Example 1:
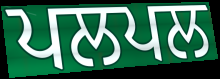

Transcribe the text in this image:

ਪਲਪਲ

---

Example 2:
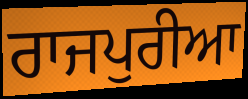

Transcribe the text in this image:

ਰਾਜਪੁਰੀਆ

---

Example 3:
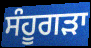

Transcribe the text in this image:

ਸੰਹੂਗੜਾ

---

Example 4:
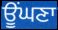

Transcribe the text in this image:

ਊਂਘਣਾ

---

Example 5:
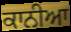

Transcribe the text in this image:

ਕਾਨੀਆ